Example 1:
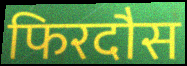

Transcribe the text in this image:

फिरदौस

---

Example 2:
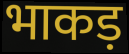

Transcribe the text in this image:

भाकड़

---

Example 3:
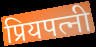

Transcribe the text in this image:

प्रियपत्नी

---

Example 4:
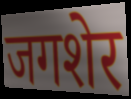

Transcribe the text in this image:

जगशेर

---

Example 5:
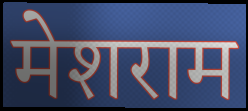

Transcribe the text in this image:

मेशराम